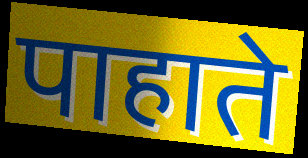
पाहाते